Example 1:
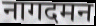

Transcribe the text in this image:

नागदमन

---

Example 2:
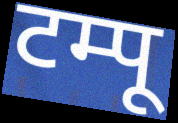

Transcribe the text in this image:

टम्पू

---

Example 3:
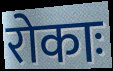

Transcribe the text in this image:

रोकाः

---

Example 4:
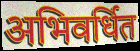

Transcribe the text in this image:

अभिवर्धित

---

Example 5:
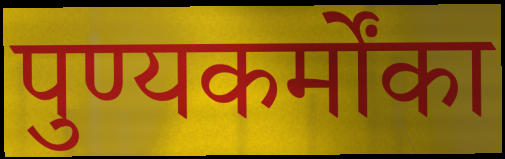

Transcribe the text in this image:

पुण्यकर्मोंका